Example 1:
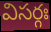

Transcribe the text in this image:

విసర్గః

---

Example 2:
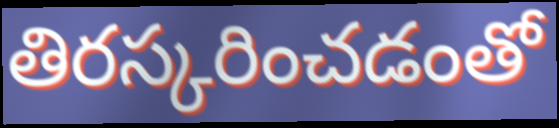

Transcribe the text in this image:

తిరస్కరించడంతో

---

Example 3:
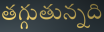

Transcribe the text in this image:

తగ్గుతున్నది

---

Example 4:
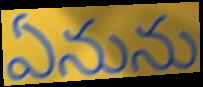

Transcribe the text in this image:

ఏనును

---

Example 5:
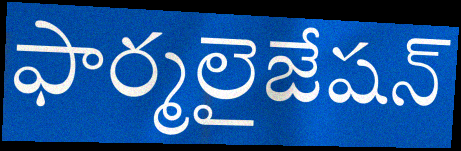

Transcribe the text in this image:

ఫార్మలైజేషన్